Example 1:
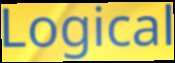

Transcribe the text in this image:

Logical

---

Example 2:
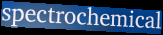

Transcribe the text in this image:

spectrochemical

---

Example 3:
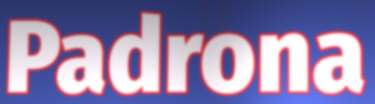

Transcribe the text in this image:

Padrona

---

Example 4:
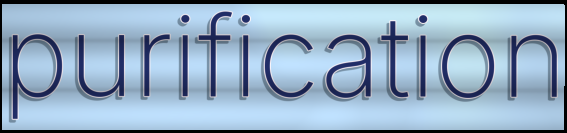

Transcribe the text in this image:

purification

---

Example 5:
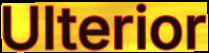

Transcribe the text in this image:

Ulterior